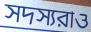
সদস্যরাও